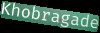
Khobragade